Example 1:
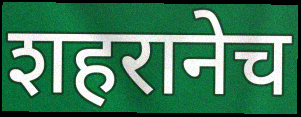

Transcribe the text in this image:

शहरानेच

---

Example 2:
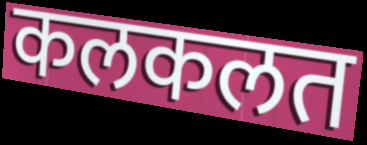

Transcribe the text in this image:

कलकलत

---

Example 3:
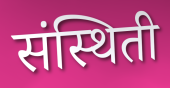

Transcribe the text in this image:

संस्थिती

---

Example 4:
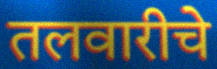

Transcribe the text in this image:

तलवारीचे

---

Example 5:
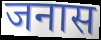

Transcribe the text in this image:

जनास